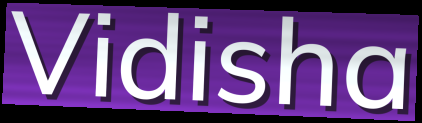
Vidisha